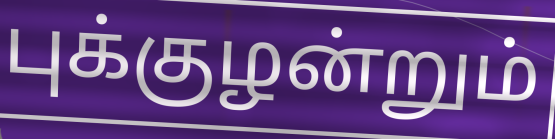
புக்குழன்றும்